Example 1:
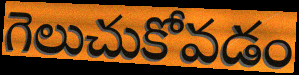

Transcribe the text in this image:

గెలుచుకోవడం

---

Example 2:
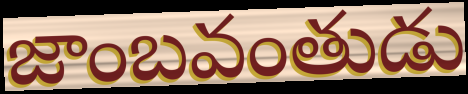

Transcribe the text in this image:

జాంబవంతుడు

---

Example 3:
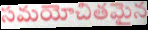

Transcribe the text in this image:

సమయోచితమైన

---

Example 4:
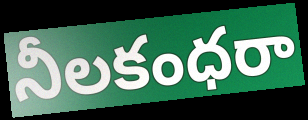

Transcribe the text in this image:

నీలకంధరా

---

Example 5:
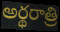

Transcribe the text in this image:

అర్థరాత్రి